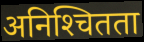
अनिश्‍चितता